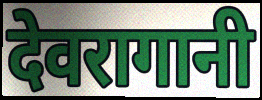
देवरागानी